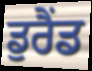
ਡੁਰੈਂਡ